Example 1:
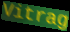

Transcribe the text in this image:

Vitrag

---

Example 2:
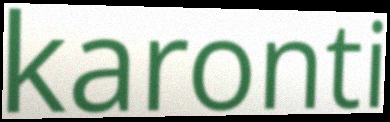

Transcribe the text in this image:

karonti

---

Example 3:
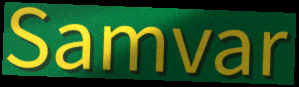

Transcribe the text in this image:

Samvar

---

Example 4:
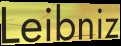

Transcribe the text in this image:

Leibniz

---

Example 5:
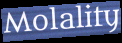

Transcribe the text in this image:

Molality